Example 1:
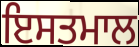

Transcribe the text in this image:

ਇਸਤਮਾਲ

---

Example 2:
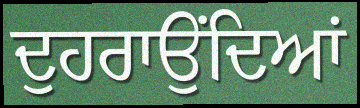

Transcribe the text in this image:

ਦੁਹਰਾਉਂਦਿਆਂ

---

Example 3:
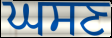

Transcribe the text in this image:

ਘਸਣ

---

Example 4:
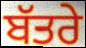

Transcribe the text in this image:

ਬੱਤਰੇ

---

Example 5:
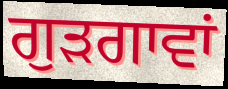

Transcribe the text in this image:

ਗੁੜਗਾਵਾਂ